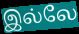
இல்லே